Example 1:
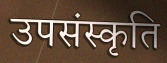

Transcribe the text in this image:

उपसंस्कृति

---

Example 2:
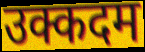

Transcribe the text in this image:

उक्कदम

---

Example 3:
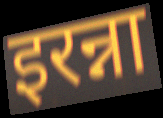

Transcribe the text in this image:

इरन्ना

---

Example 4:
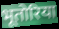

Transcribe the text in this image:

भूतोरिया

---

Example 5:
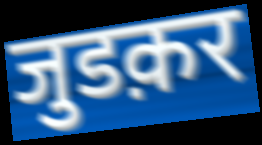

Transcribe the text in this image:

जुडक़र